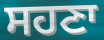
ਸਹਣਾ